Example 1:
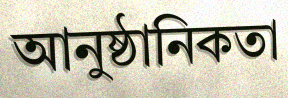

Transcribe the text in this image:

আনুষ্ঠানিকতা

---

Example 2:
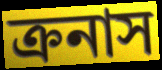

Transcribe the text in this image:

ক্রনাস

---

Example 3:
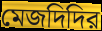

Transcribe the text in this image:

মেজদিদির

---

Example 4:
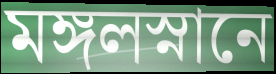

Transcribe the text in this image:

মঙ্গলস্নানে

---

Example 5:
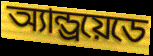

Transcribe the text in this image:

অ্যান্ড্রয়েডে